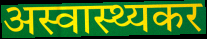
अस्वास्थ्यकर